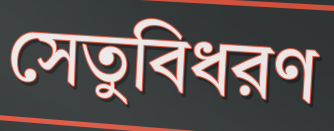
সেতুবিধরণ